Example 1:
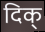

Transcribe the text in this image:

दिक्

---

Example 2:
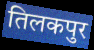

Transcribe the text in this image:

तिलकपुर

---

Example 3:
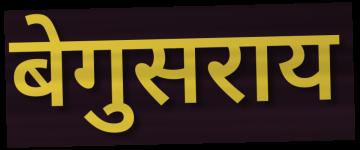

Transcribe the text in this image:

बेगुसराय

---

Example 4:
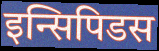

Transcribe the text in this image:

इन्सिपिडस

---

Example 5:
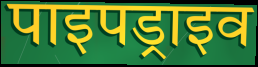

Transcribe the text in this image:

पाइपड्राइव